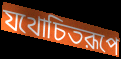
যথোচিতরূপে